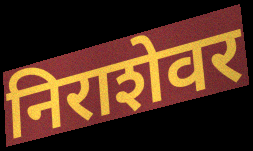
निराशेवर